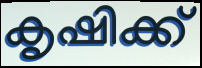
കൃഷിക്ക്